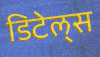
डिटेल्स